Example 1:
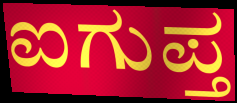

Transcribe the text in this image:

ಐಗುಪ್ತ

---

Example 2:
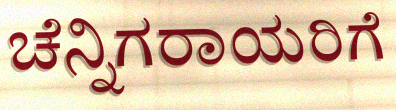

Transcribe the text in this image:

ಚೆನ್ನಿಗರಾಯರಿಗೆ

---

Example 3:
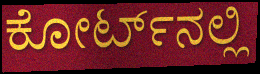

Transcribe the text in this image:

ಕೋರ್ಟ್‌ನಲ್ಲಿ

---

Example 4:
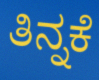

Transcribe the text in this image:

ತಿನ್ನಕೆ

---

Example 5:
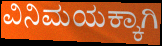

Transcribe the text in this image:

ವಿನಿಮಯಕ್ಕಾಗಿ